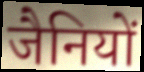
जैनियों